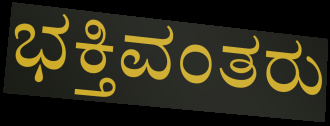
ಭಕ್ತಿವಂತರು